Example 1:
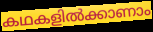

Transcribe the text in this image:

കഥകളിൽക്കാണാം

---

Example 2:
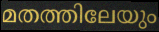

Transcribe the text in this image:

മതത്തിലേയും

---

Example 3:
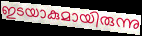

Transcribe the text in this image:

ഇടയാകുമായിരുന്നു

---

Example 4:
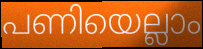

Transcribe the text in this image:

പണിയെല്ലാം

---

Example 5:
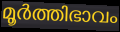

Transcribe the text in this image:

മൂർത്തിഭാവം